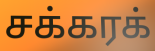
சக்கரக்